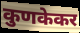
कुणकेकर